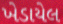
ખેડાયેલ